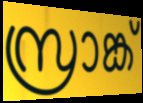
സ്രാങ്ക്